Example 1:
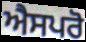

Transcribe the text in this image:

ਐਸਪਰੋ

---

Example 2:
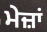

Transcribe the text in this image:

ਮੇਜ਼ਾਂ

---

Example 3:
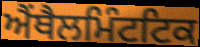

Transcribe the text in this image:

ਐਂਥੈਲਮਿੰਟਟਿਕ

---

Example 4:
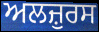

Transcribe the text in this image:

ਅਲਜ਼ੁਰਸ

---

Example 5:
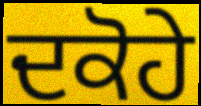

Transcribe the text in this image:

ਦਕੋਹੇ